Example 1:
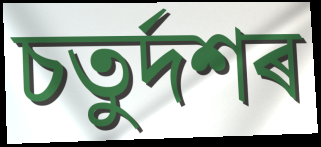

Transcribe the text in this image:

চতুৰ্দশৰ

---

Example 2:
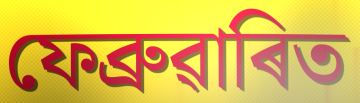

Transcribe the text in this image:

ফেব্ৰুৱাৰিত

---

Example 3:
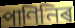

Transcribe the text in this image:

পাণিনিৰ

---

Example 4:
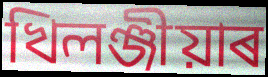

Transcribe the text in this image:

খিলঞ্জীয়াৰ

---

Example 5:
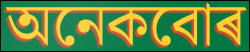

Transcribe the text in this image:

অনেকবোৰ